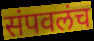
संपवलंच